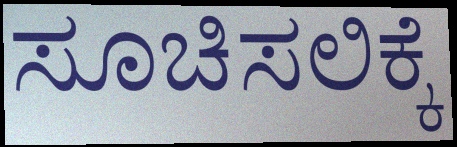
ಸೂಚಿಸಲಿಕ್ಕೆ